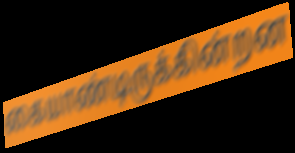
கையாண்டிருக்கின்றன